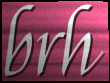
brh